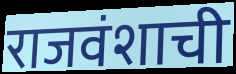
राजवंशाची